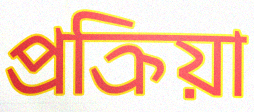
প্রক্রিয়া